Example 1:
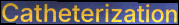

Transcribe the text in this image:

Catheterization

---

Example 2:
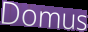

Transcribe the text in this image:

Domus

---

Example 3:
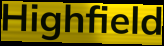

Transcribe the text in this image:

Highfield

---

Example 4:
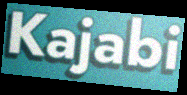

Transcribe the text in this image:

Kajabi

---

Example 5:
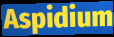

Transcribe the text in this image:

Aspidium